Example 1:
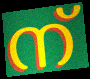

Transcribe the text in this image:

ന്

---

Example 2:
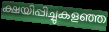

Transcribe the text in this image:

ക്ഷയിപ്പിച്ചുകളഞ്ഞ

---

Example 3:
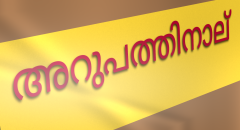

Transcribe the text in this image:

അറുപത്തിനാല്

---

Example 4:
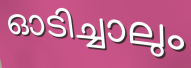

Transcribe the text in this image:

ഓടിച്ചാലും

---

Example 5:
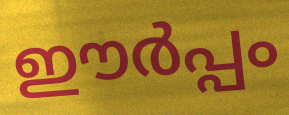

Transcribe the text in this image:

ഈർപ്പം